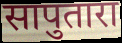
सापुतारा